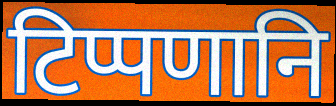
टिप्पणानि